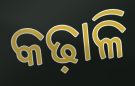
କଢ଼ାଳି